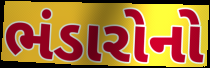
ભંડારોનો